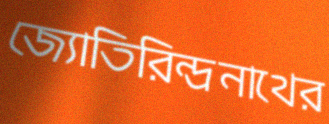
জ্যোতিরিন্দ্রনাথের